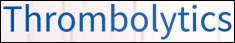
Thrombolytics